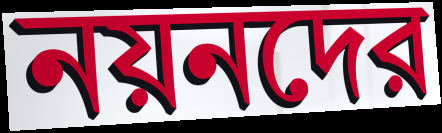
নয়নদের